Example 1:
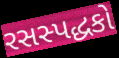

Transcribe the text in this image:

રસસ્પદ્ધકો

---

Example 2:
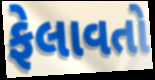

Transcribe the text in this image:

ફેલાવતો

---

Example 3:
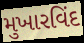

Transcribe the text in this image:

મુખારવિંદ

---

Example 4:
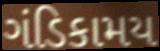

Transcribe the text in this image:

ગંડિકામય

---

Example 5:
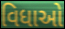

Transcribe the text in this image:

વિધાઓ